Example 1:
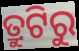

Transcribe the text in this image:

ତ୍ରୁଟିରୁ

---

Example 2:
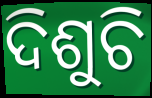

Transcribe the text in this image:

ଦିଶୁଚି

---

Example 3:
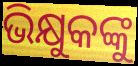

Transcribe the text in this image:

ଭିକ୍ଷୁକଙ୍କୁ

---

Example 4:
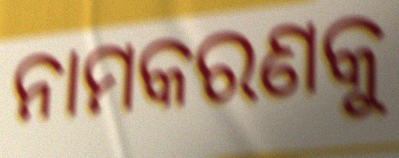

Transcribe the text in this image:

ନାମକରଣକୁ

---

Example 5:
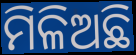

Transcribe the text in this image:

ମିଳିଅଛି